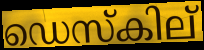
ഡെസ്കില്